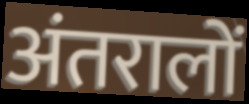
अंतरालों